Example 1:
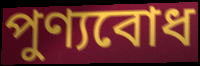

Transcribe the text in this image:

পুণ্যবোধ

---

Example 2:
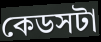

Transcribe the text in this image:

কেডসটা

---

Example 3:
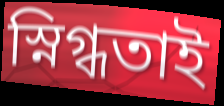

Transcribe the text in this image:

স্নিগ্ধতাই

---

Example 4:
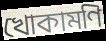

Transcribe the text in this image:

খোকামণি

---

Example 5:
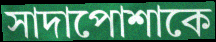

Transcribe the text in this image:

সাদাপোশাকে